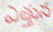
ఎత్తున